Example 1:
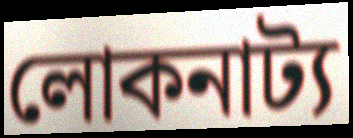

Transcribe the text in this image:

লোকনাট্য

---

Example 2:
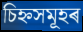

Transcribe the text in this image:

চিহ্নসমূহৰ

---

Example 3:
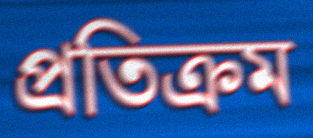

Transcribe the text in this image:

প্ৰতিক্ৰম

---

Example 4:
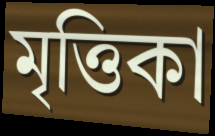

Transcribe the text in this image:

মৃত্তিকা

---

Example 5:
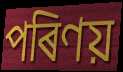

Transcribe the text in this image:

পৰিণয়